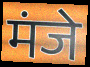
मंजे